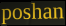
poshan